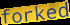
forked